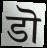
डॊ